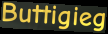
Buttigieg